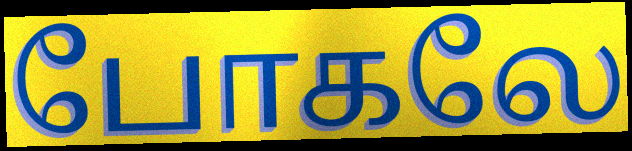
போகலே